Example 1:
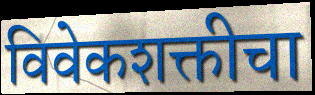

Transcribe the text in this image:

विवेकशक्तीचा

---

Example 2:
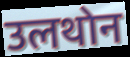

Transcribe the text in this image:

उलथोन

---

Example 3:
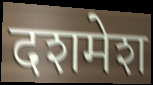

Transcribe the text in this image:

दशमेश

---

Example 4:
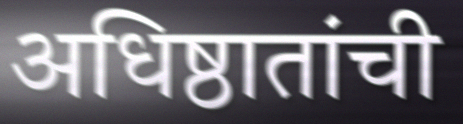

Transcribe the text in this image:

अधिष्ठातांची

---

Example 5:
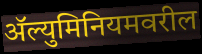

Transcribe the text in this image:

ॲल्युमिनियमवरील